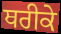
ਥਰੀਕੇ